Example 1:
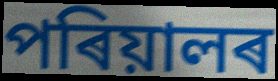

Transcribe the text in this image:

পৰিয়ালৰ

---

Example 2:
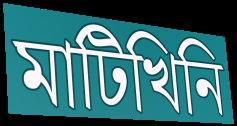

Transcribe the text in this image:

মাটিখিনি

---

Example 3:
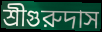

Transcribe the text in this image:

শ্ৰীগুৰুদাস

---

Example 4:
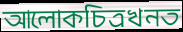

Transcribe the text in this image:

আলোকচিত্ৰখনত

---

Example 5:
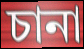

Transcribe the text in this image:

চানা